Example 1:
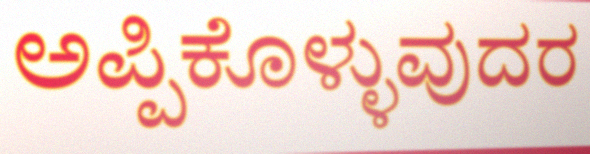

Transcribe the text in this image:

ಅಪ್ಪಿಕೊಳ್ಳುವುದರ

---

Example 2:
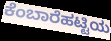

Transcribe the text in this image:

ಕೆಂಬಾರೆಹಟ್ಟಿಯ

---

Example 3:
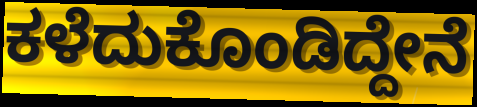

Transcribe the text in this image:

ಕಳೆದುಕೊಂಡಿದ್ದೇನೆ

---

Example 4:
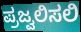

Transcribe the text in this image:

ಪ್ರಜ್ವಲಿಸಲಿ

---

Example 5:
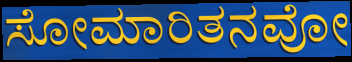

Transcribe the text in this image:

ಸೋಮಾರಿತನವೋ